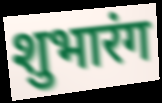
शुभारंग